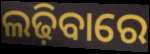
ଲଢ଼ିବାରେ